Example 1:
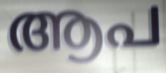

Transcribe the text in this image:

ആപ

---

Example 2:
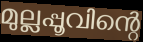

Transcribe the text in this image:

മുല്ലപ്പൂവിന്റെ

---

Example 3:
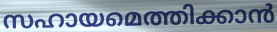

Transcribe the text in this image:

സഹായമെത്തിക്കാൻ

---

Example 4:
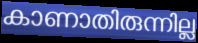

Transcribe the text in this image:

കാണാതിരുന്നില്ല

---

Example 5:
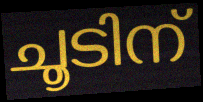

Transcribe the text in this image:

ചൂടിന്